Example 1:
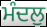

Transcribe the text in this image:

ਮੰਦਲੁ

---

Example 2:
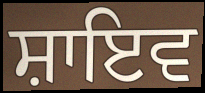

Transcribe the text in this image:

ਸ਼ਾਇਵ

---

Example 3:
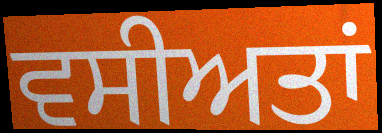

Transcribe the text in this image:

ਵਸੀਅਤਾਂ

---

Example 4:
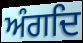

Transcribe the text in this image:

ਅੰਗਦਿ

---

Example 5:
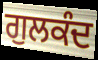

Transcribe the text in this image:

ਗੁਲਕੰਦ